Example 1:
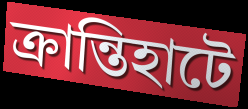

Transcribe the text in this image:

ক্রান্তিহাটে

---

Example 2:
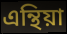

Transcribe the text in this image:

এন্থিয়া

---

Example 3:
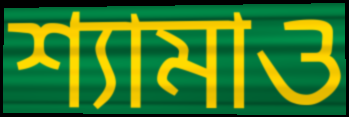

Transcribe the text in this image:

শ্যামাও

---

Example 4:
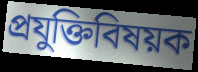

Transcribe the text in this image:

প্রযুক্তিবিষয়ক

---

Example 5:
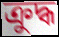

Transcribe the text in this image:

ক্রুদ্ধ